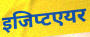
इजिप्टएयर